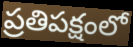
ప్రతిపక్షంలో